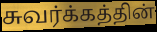
சுவர்க்கத்தின்